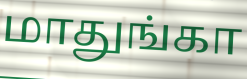
மாதுங்கா